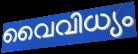
വൈവിധ്യം